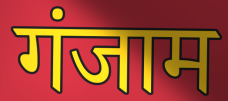
गंजाम